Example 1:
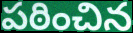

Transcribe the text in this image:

పఠించిన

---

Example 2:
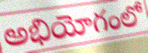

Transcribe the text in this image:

అభియోగంలో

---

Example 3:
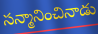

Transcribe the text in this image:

సన్మానించినాడు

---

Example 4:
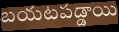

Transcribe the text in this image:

బయటపడ్డాయి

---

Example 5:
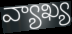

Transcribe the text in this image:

వ్యాఖ్య